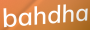
bahdha